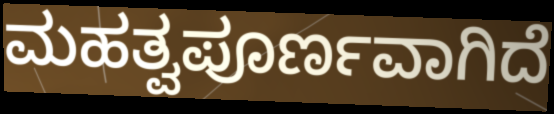
ಮಹತ್ವಪೂರ್ಣವಾಗಿದೆ